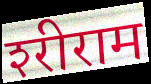
श्रीराम